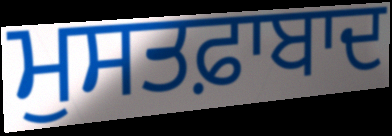
ਮੁਸਤਫ਼ਾਬਾਦ